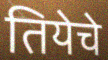
तियेचे